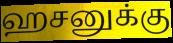
ஹசனுக்கு